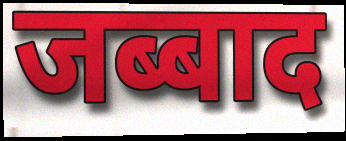
जब्बाद